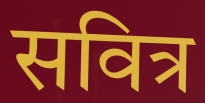
सवित्र